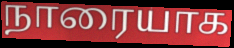
நாரையாக